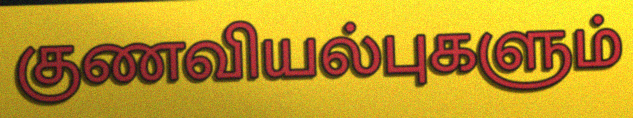
குணவியல்புகளும்